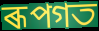
ৰূপগত